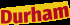
Durham